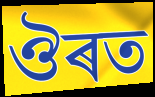
ঔৰত